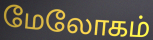
மேலோகம்